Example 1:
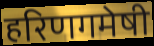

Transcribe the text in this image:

हरिणगमेषी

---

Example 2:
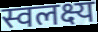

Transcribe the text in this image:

स्वलक्ष्य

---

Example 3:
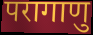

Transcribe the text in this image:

परागाणु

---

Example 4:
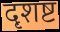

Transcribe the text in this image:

दृशष्ट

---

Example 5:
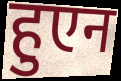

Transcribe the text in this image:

हुएन